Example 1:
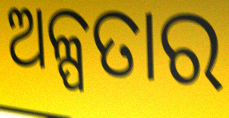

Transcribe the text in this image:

ଅଳ୍ପତାର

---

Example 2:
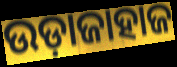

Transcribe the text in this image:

ଉଡ଼ାଜାହାଜ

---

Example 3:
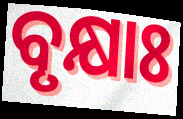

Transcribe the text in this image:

ବୃକ୍ଷାଃ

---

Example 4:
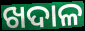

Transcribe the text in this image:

ଖଦାଳ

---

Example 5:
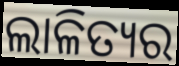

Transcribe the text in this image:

ଲାଳିତ୍ୟର